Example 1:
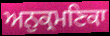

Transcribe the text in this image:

ਅਨੁਕ੍ਰਮਣਿਕਾ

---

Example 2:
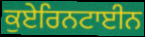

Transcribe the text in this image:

ਕੁਏਰਿਨਟਾਈਨ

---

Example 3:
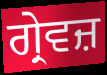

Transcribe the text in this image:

ਗ੍ਰੇਵਜ਼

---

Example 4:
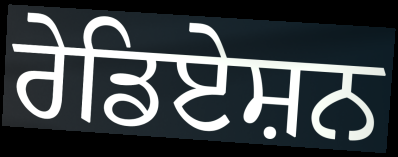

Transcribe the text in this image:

ਰੇਡਿਏਸ਼ਨ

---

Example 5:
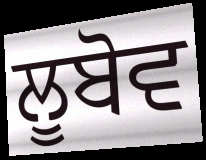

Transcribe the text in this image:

ਲੂਬੋਵ